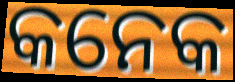
କନେକ